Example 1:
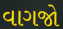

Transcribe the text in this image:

વાગજો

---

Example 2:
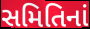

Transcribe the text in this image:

સમિતિનાં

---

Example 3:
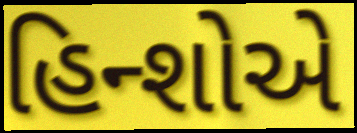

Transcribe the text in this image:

હિન્શોએ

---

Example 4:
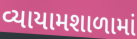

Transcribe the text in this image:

વ્યાયામશાળામાં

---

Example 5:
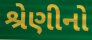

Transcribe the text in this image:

શ્રેણીનો